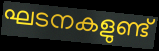
ഘടനകളുണ്ട്